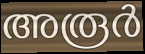
അരൂർ